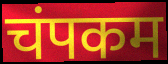
चंपकम